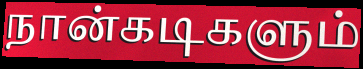
நான்கடிகளும்